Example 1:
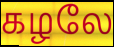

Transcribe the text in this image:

கழலே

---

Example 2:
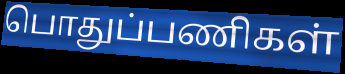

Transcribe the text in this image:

பொதுப்பணிகள்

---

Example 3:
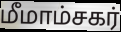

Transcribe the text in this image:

மீமாம்சகர்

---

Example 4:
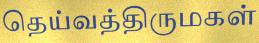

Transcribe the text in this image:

தெய்வத்திருமகள்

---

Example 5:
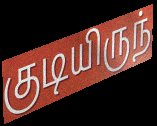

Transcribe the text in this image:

குடியிருந்